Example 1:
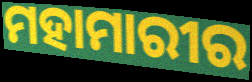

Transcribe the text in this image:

ମହାମାରୀର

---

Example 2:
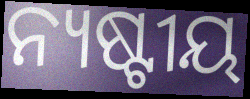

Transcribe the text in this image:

ନ୍ୟଷ୍ଟୀୟ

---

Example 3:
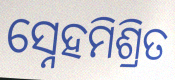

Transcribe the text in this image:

ସ୍ନେହମିଶ୍ରିତ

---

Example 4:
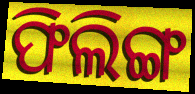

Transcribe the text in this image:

ଫିଲିଙ୍ଗ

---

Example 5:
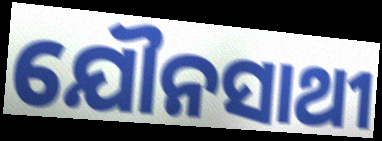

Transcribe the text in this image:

ଯୌନସାଥୀ